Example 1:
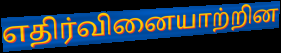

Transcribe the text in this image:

எதிர்வினையாற்றின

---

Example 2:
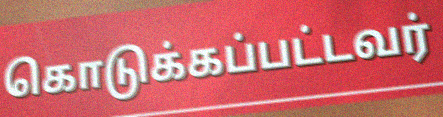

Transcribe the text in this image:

கொடுக்கப்பட்டவர்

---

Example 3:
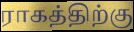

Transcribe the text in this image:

ராகத்திற்கு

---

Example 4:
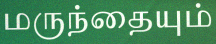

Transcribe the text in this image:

மருந்தையும்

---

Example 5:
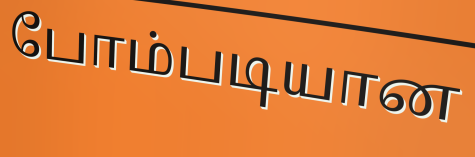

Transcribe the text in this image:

போம்படியான